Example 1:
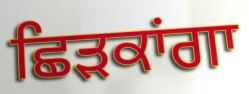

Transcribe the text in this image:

ਛਿੜਕਾਂਗਾ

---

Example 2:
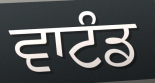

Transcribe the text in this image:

ਵਾਟੰਡ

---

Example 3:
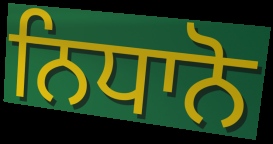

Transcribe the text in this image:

ਨਿਧਾਨੋ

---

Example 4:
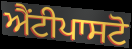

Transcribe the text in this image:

ਐਂਟੀਪਾਸਟੋ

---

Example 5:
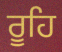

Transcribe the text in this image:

ਰੂਹਿ